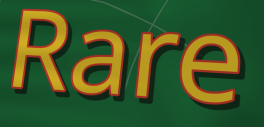
Rare